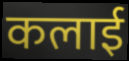
कलाई